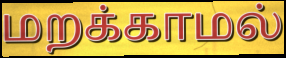
மறக்காமல்